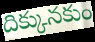
దిక్కునకుం